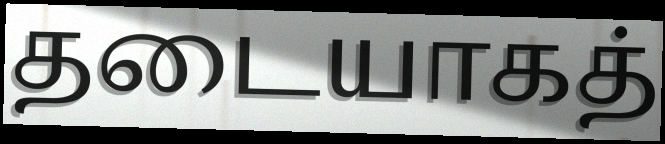
தடையாகத்